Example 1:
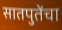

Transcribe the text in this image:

सातपुतेंचा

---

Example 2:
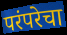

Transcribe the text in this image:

परंपरेचा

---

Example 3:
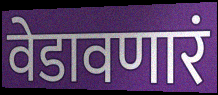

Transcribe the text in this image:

वेडावणारं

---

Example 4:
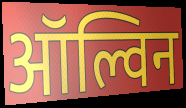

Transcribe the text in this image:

ऑल्विन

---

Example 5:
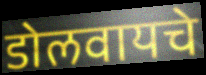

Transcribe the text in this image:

डोलवायचे